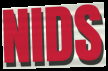
NIDS